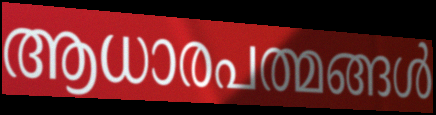
ആധാരപത്മങ്ങൾ